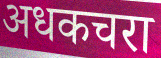
अधकचरा